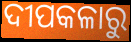
ଦୀପକଳାରୁ